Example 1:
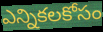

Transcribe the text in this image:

ఎన్నికలకోసం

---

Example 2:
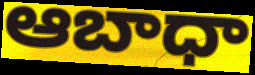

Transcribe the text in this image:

ఆబాధా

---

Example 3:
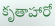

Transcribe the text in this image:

కృతాహారో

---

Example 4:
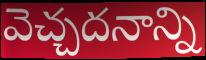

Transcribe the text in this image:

వెచ్చదనాన్ని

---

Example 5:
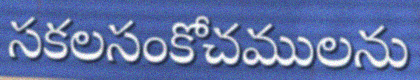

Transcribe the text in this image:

సకలసంకోచములను